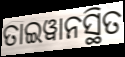
ତାଇୱାନସ୍ଥିତ